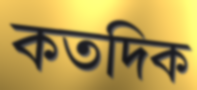
কতদিক